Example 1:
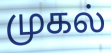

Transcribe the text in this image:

முகல்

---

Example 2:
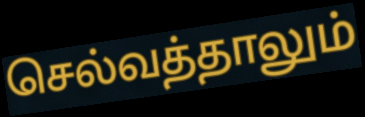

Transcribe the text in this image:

செல்வத்தாலும்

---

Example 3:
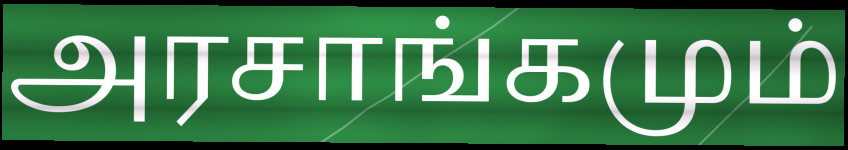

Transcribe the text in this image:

அரசாங்கமும்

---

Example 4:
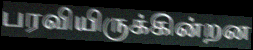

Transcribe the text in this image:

பரவியிருக்கின்றன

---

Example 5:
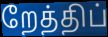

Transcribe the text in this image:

றேத்திப்